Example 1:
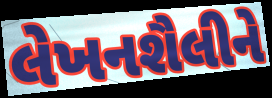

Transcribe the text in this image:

લેખનશૈલીને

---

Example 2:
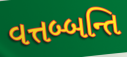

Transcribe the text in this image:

વત્તબ્બન્તિ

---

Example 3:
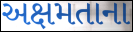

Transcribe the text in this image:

અક્ષમતાના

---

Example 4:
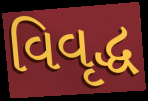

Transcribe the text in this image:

વિવૃદ્ધ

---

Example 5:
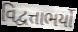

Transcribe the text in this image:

વિદ્વત્તાભર્યો